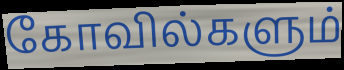
கோவில்களும்